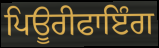
ਪਿਊਰੀਫਾਇੰਗ